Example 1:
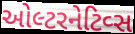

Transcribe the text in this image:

ઓલ્ટરનેટિવ્સ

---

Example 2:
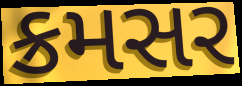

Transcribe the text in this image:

ક્રમસર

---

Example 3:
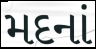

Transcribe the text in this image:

મદનાં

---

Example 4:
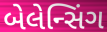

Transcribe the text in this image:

બેલેન્સિંગ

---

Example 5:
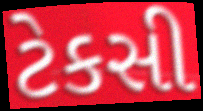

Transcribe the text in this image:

ટેકસી